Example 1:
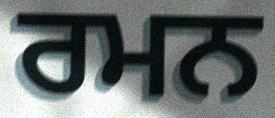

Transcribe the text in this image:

ਰਮਨ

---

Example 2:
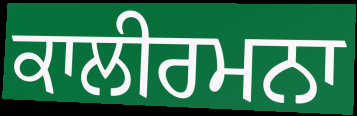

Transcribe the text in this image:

ਕਾਲੀਰਮਨਾ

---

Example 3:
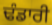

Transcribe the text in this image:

ਢੰਡਾਰੀ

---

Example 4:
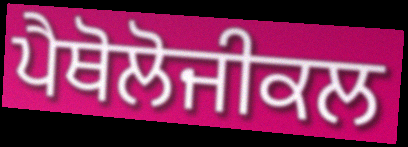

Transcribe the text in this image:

ਪੈਥੋਲੋਜੀਕਲ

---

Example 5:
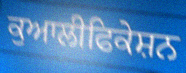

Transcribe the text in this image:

ਕੁਆਲੀਫਿਕੇਸ਼ਨ